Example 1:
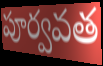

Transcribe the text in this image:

పూర్వవత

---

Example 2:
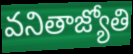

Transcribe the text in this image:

వనితాజ్యోతి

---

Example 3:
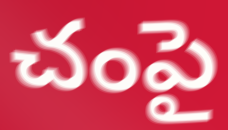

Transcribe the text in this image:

చంపై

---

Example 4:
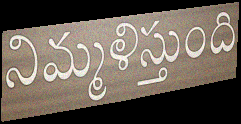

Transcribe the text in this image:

నిమ్మళిస్తుంది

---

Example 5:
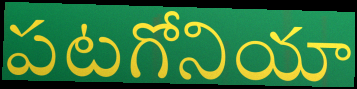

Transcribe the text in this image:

పటగోనియా